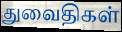
துவைதிகள்